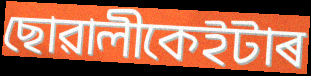
ছোৱালীকেইটাৰ